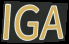
IGA